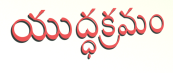
యుద్ధక్రమం